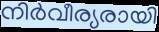
നിർവീര്യരായി